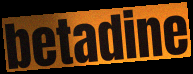
betadine